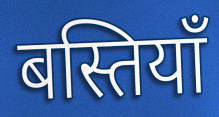
बस्तियाँ